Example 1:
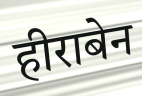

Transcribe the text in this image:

हीराबेन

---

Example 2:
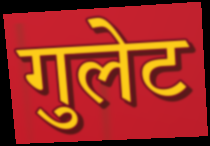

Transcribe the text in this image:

गुलेट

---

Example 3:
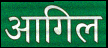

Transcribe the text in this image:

आगिल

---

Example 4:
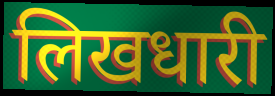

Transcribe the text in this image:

लिखधारी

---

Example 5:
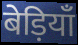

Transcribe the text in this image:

बेड़ियाँ